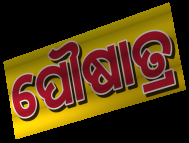
ପୌଷାତ୍ର